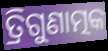
ତ୍ରିଗୁଣାତ୍ମକ